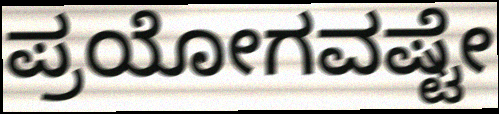
ಪ್ರಯೋಗವಷ್ಟೇ